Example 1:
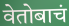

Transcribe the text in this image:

वेतोबाचं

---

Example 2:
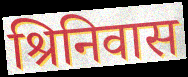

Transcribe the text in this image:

श्रिनिवास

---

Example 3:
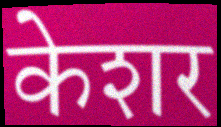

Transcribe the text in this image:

केशर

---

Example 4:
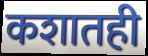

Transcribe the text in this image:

कशातही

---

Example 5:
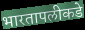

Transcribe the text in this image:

भारतापलीकडे